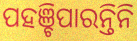
ପହଞ୍ଚିପାରନ୍ତିନି